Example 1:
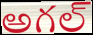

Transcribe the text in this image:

అగల్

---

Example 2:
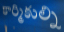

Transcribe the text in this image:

కార్మికుల్ని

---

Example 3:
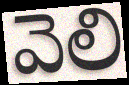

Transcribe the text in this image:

వెలి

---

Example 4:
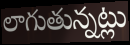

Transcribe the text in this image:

లాగుతున్నట్లు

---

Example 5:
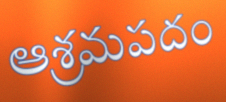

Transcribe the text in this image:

ఆశ్రమపదం